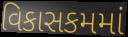
વિકાસકમમાં